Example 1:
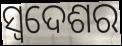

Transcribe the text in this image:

ସ୍ଵଦେଶର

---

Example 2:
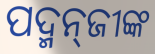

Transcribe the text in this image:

ପଦ୍ମନ୍‌ଜୀଙ୍କ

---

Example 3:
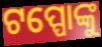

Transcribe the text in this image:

ଟପ୍ପୋଙ୍କୁ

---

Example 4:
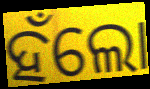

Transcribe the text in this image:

ହଁଲୋ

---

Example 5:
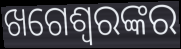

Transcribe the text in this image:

ଖଗେଶ୍ୱରଙ୍କର